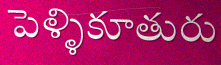
పెళ్ళికూతురు